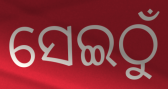
ସେଇଠୁଁ